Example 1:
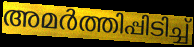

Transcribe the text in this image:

അമർത്തിപ്പിടിച്ച്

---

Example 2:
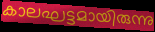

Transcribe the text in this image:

കാലഘട്ടമായിരുന്നു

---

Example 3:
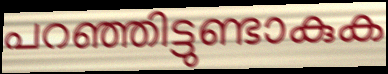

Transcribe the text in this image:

പറഞ്ഞിട്ടുണ്ടാകുക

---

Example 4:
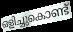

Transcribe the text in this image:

ഒളിച്ചുകൊണ്ട്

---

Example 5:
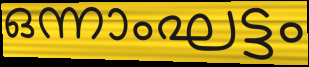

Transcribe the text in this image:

ഒന്നാംഘട്ടം